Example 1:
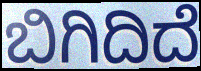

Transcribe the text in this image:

ಬಿಗಿದಿದೆ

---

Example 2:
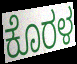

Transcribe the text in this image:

ಕೊರಳ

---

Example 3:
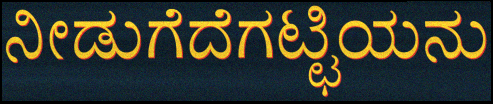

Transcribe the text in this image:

ನೀಡುಗೆದೆಗಟ್ಟಿಯನು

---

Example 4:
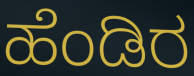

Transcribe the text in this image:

ಹೆಂಡಿರ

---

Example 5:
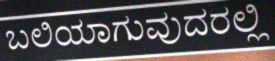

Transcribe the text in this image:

ಬಲಿಯಾಗುವುದರಲ್ಲಿ